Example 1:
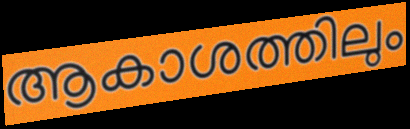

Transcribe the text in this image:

ആകാശത്തിലും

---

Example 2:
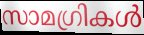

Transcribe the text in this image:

സാമഗ്രികൾ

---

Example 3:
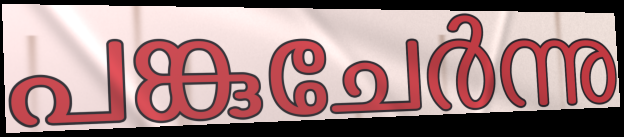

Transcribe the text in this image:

പങ്കുചേർന്നു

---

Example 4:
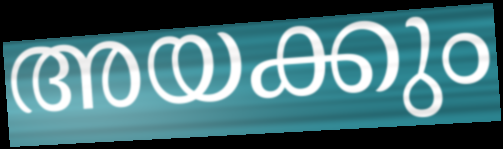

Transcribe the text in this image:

അയക്കും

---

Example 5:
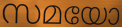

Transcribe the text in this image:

സമയോ